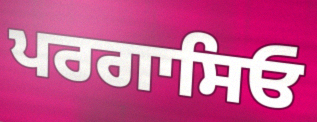
ਪਰਗਾਸਿਓ